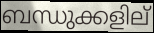
ബന്ധുക്കളില്